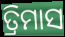
ତ୍ରିମାସ